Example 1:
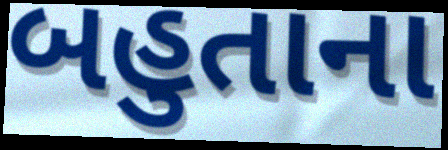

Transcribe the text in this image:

બહુતાના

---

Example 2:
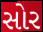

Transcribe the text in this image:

સોર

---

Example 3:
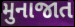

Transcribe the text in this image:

મુનાજાત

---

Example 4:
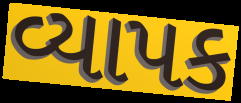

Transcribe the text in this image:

વ્યાપક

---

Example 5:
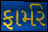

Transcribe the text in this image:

ફાર્મરે